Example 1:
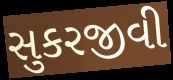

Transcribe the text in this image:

સુકરજીવી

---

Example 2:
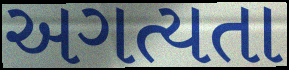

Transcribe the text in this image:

અગત્યતા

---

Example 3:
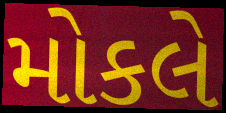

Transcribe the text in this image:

મોકલે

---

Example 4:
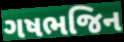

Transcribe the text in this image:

ગષભજિન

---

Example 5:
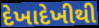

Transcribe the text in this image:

દેખાદેખીથી